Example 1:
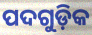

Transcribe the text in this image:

ପଦଗୁଡ଼ିକ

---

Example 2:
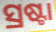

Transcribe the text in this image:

ସ୍ରଷ୍ଟା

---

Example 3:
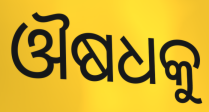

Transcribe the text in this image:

ଔଷଧକୁ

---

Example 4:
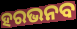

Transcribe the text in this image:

ହରଭନବ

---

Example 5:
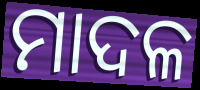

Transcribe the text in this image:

ମାଦଳ